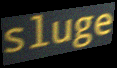
sluge